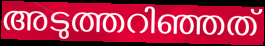
അടുത്തറിഞ്ഞത്